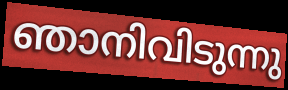
ഞാനിവിടുന്നു